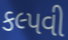
કલ્પવી